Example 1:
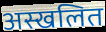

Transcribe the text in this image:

अस्खलित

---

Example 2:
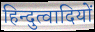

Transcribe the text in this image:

हिन्दुत्वादियों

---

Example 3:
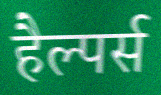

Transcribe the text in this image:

हैल्पर्स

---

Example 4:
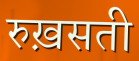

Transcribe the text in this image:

रुख़सती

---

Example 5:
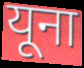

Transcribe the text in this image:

यूना